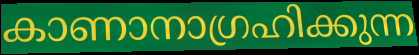
കാണാനാഗ്രഹിക്കുന്ന